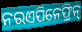
ନରଏପିନେଫ୍ରିନ୍